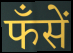
फँसें